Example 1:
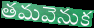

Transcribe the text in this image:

తమవెనుక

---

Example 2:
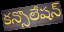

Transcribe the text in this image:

కన్సొలేషన్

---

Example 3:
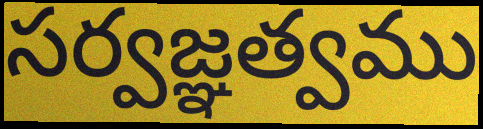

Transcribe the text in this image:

సర్వజ్ఞత్వము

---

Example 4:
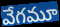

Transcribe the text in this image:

వేగమూ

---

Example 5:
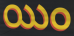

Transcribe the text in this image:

యిం